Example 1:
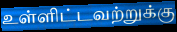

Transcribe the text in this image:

உள்ளிட்டவற்றுக்கு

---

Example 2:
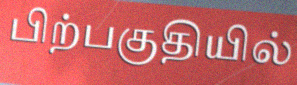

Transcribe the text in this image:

பிற்பகுதியில்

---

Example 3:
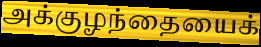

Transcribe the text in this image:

அக்குழந்தையைக்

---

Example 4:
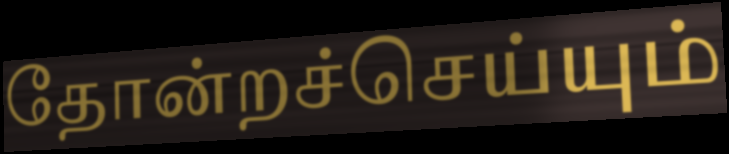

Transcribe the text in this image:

தோன்றச்செய்யும்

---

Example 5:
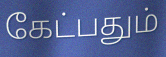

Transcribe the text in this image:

கேட்பதும்